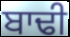
ਬਾਢੀ